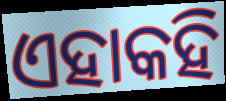
ଏହାକହି